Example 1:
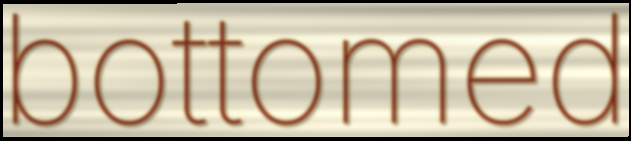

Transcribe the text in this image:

bottomed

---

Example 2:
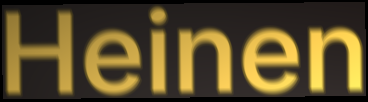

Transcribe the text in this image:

Heinen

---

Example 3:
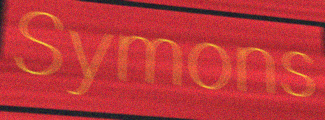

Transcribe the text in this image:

Symons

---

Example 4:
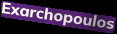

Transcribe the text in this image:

Exarchopoulos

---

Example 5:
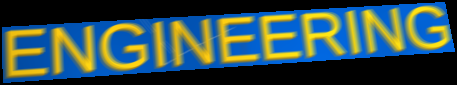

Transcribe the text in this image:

ENGINEERING